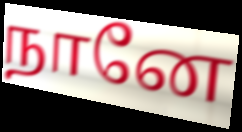
நானே